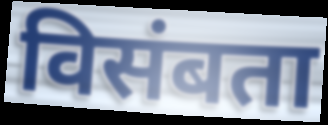
विसंबता